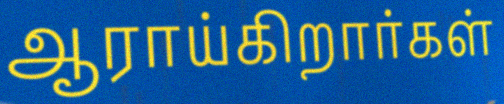
ஆராய்கிறார்கள்